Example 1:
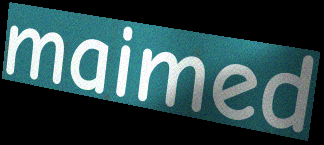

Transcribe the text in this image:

maimed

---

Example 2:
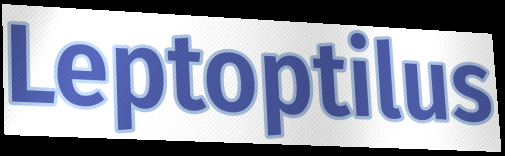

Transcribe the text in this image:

Leptoptilus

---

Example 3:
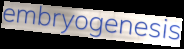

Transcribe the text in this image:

embryogenesis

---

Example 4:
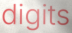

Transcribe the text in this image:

digits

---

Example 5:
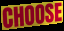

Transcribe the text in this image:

CHOOSE